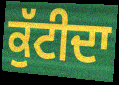
ਕੁੱਟੀਦਾ